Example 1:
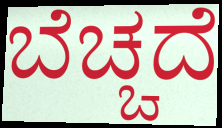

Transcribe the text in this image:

ಬೆಚ್ಚದೆ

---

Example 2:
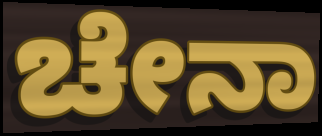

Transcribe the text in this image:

ಚೇನಾ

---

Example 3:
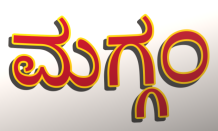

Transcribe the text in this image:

ಮಗ್ಗಂ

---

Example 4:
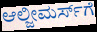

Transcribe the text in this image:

ಆಲ್ಜೀಮರ್ಸ್‌ಗೆ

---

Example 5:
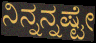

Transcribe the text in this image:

ನಿನ್ನನ್ನಷ್ಟೇ